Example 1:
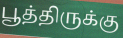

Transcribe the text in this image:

பூத்திருக்கு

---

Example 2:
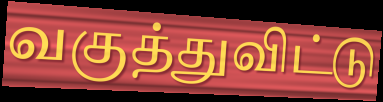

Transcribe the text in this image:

வகுத்துவிட்டு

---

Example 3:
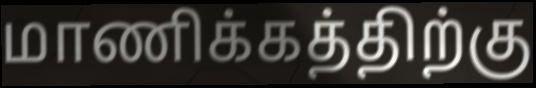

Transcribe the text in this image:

மாணிக்கத்திற்கு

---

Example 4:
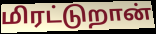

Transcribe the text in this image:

மிரட்டுறான்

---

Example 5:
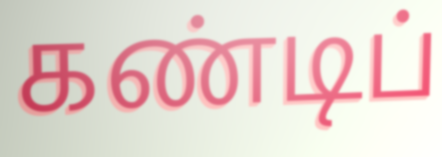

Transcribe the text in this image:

கண்டிப்